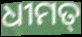
ଧୀମତ୍